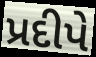
પ્રદીપે